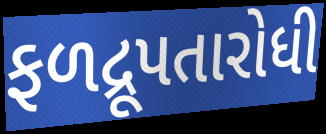
ફળદ્રૂપતારોધી